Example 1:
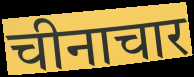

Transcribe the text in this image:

चीनाचार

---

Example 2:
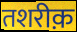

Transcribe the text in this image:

तशरीक़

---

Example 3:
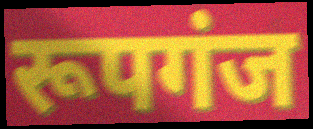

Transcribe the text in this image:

रूपगंज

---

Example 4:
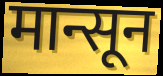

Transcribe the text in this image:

मान्सून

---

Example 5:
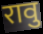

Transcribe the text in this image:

रावु